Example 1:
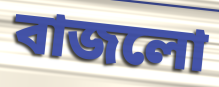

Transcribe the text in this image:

বাজলো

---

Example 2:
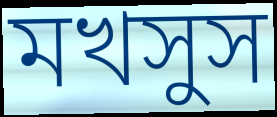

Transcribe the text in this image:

মখসুস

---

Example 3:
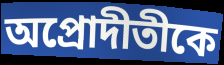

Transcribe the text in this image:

অপ্রোদীতীকে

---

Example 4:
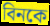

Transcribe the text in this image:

বিনকে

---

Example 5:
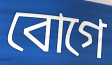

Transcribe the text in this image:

বোগে